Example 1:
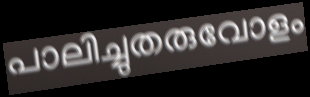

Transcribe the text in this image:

പാലിച്ചുതരുവോളം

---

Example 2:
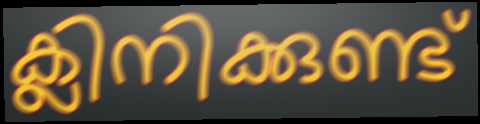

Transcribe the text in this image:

ക്ലിനിക്കുണ്ട്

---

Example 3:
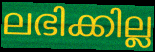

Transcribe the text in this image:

ലഭിക്കില്ല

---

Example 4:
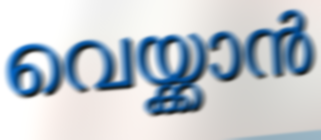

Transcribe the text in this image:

വെയ്ക്കാൻ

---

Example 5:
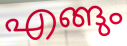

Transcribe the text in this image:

എങ്ങും